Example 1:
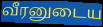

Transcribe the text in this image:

வீரனுடைய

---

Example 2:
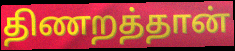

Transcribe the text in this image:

திணறத்தான்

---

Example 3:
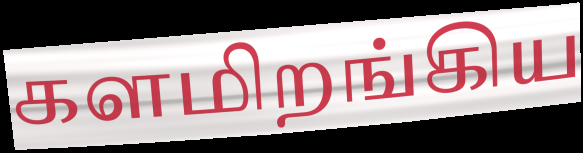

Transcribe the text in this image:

களமிறங்கிய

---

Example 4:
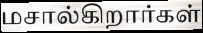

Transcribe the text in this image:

மசால்கிறார்கள்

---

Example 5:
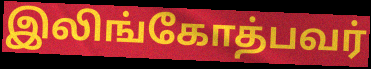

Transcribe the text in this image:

இலிங்கோத்பவர்